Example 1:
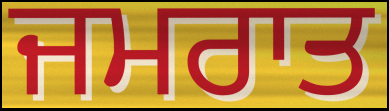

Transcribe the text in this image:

ਜਮਰਾਤ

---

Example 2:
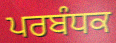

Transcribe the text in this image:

ਪਰਬੰਧਕ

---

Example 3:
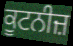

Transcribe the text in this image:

ਕੂਟਨੀਜ਼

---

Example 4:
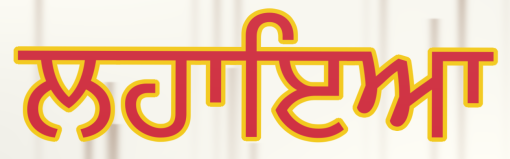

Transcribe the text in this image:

ਲਹਾਇਆ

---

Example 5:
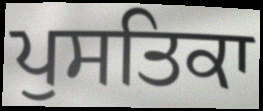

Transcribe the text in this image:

ਪੁਸਤਿਕਾ